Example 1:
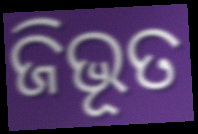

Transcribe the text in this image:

ଜିଭୂତ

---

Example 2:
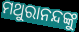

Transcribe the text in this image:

ମଥୁରାନନ୍ଦଙ୍କୁ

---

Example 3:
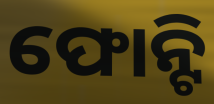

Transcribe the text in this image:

ଫୋନ୍ଟି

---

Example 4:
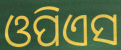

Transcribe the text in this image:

ଓପିଏସ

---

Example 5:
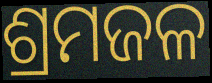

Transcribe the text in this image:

ଶ୍ରମଜଳ